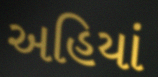
અહિયાં